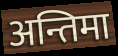
अन्तिमा